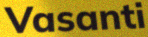
Vasanti